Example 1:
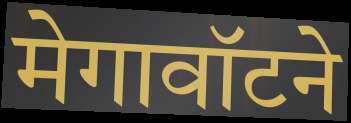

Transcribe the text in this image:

मेगावॉटने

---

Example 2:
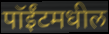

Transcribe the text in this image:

पॉईंटमधील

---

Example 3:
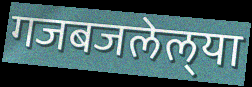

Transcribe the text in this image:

गजबजलेल्या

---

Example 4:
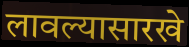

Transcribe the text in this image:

लावल्यासारखे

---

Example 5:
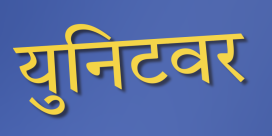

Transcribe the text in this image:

युनिटवर